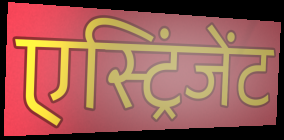
एस्ट्रिंजेंट